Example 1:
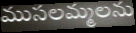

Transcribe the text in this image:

ముసలమ్మలను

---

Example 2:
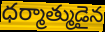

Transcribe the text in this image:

ధర్మాత్ముడైన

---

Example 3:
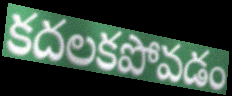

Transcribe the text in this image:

కదలకపోవడం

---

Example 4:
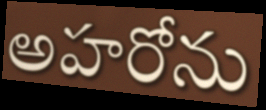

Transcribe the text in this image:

అహరోను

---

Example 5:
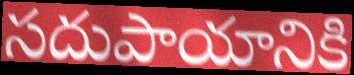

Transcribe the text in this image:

సదుపాయానికి